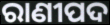
ରାଣୀପଦ